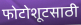
फोटोशूटसाठी